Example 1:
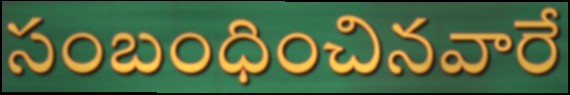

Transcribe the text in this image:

సంబంధించినవారే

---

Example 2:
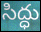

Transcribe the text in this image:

సిద్ధు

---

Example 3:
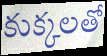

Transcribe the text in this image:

కుక్కలతో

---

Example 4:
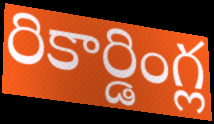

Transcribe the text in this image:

రికార్డింగ్ల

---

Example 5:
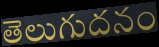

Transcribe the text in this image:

తెలుగుదనం